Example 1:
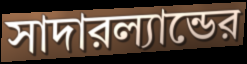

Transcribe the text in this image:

সাদারল্যান্ডের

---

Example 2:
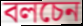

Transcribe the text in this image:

বলচেন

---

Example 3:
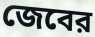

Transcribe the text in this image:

জেবের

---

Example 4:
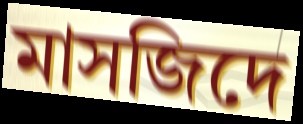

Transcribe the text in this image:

মাসজিদে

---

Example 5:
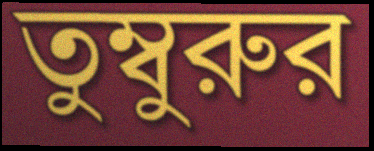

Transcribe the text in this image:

তুম্বুরুর